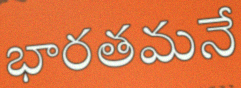
భారతమనే